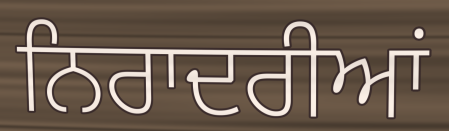
ਨਿਰਾਦਰੀਆਂ